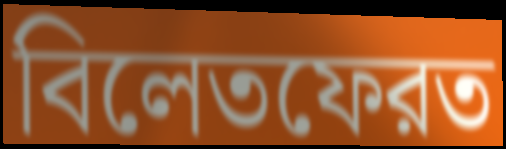
বিলেতফেরত